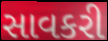
સાવકરી